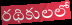
రథికులలో